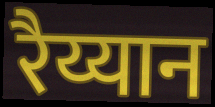
रैय्यान